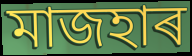
মাজহাৰ